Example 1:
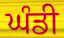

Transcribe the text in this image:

ਘੰਡੀ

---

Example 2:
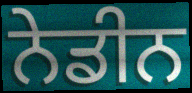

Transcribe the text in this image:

ਨੇਡੀਨ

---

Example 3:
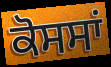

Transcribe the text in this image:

ਕੋਸਸਾਂ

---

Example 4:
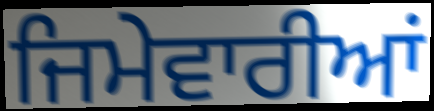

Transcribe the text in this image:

ਜਿਮੇਵਾਰੀਆਂ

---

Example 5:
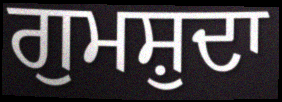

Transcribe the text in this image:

ਗੁਮਸ਼ੁਦਾ